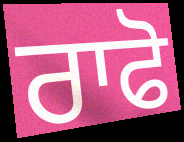
ਰਾਫੋ